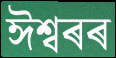
ঈশ্বৰৰ